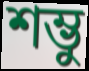
শম্ভু